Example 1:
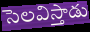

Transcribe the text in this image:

సెలవిస్తాడు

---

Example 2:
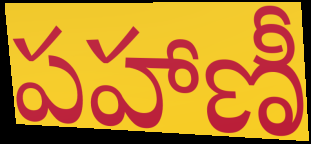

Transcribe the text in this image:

పహాణీ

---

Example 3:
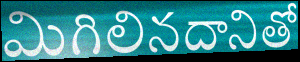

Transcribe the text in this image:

మిగిలినదానితో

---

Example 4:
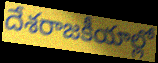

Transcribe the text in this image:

దేశరాజకీయాల్లో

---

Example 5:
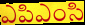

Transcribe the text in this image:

ఎపిఎంసి